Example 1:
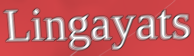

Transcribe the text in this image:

Lingayats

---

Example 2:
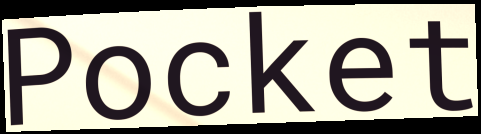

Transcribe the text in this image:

Pocket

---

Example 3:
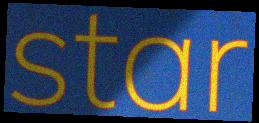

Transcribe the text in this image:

star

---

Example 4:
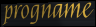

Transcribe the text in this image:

progname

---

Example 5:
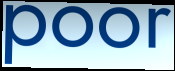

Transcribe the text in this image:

poor